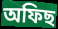
অফিছ